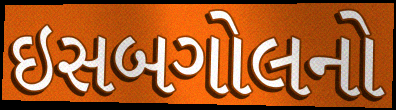
ઇસબગોલનો